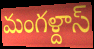
మంగళ్దాస్